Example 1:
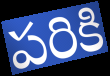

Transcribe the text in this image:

పరికి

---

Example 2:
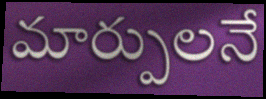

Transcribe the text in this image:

మార్పులనే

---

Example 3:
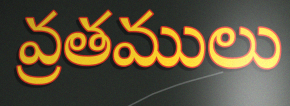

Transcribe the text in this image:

వ్రతములు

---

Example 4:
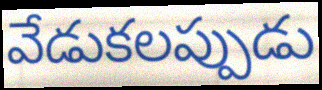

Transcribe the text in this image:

వేడుకలప్పుడు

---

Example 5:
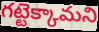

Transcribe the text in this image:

గట్టెక్కామని